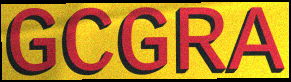
GCGRA